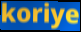
koriye